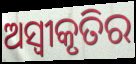
ଅସ୍ୱୀକୃତିର